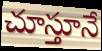
చూస్తూనే